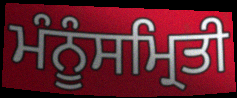
ਮੰਨੂੰਸਮ੍ਰਿਤੀ